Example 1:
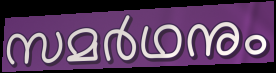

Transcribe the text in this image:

സമർഥനും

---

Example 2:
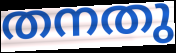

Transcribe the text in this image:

തനതു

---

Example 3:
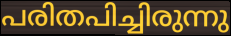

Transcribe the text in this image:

പരിതപിച്ചിരുന്നു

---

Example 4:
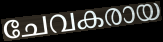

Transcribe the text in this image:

ചേവകരായ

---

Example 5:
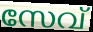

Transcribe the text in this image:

സേവ്